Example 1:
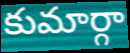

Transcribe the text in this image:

కుమార్గా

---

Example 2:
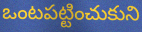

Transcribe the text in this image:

ఒంటపట్టించుకుని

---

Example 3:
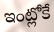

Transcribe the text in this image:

ఇంట్లోకే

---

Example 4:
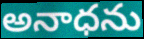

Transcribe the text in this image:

అనాధను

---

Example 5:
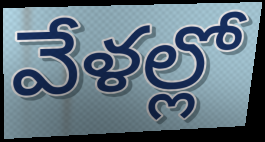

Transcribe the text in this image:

వేళల్లో